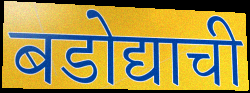
बडोद्याची